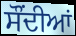
ਸੌਂਦੀਆਂ